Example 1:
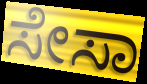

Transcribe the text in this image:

ಸೇಸಾ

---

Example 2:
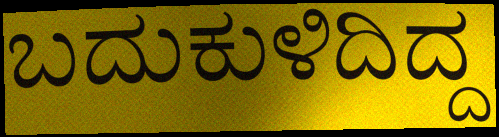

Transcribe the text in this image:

ಬದುಕುಳಿದಿದ್ದ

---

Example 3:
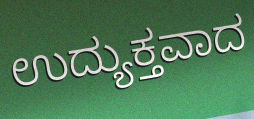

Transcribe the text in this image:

ಉದ್ಯುಕ್ತವಾದ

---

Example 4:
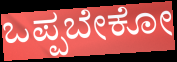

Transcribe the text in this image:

ಒಪ್ಪಬೇಕೋ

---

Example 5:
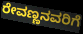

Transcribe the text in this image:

ರೇವಣ್ಣನವರಿಗೆ